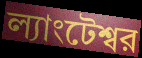
ল্যাংটেশ্বর